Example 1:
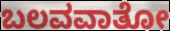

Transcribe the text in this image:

ಬಲವವಾತೋ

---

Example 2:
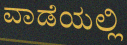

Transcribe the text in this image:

ವಾಡೆಯಲ್ಲಿ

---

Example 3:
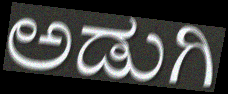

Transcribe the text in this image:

ಅಡುಗಿ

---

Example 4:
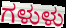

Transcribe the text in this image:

ಗಳುಳು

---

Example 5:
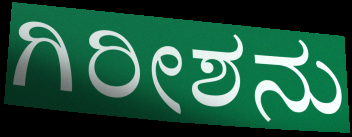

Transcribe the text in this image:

ಗಿರೀಶನು